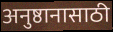
अनुष्ठानासाठी